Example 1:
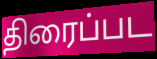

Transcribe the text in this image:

திரைப்பட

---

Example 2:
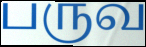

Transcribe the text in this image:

பருவ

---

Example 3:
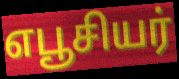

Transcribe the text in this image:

எபூசியர்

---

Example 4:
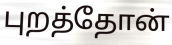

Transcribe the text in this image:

புறத்தோன்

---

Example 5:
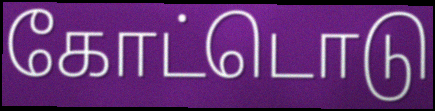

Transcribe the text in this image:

கோட்டொடு